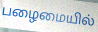
பழைமையில்